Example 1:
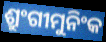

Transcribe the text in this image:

ଶ୍ରୁଂଗୀମୁନିଂକ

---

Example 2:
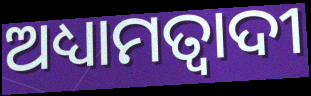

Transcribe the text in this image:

ଅଧ୍ୟାମତ୍ବାଦୀ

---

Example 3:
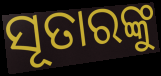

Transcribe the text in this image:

ସୂତାରଙ୍କୁ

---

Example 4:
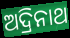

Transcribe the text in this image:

ଅଦ୍ରିନାଥ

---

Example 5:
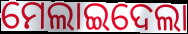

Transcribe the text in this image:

ମେଲାଇଦେଲା